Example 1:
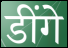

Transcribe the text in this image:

डींगे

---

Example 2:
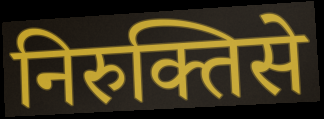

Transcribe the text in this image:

निरुक्तिसे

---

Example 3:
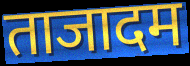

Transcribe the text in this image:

ताजादम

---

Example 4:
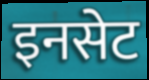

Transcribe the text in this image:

इनसेट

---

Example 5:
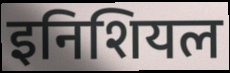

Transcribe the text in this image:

इनिशियल